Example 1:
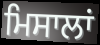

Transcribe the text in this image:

ਮਿਸਾਲਾਂ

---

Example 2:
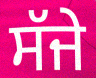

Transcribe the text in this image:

ਸੱਜੇ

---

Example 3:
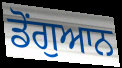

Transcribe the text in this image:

ਡੋਂਗੁਆਨ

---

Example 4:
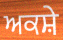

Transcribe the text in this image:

ਅਕਸ਼ੇ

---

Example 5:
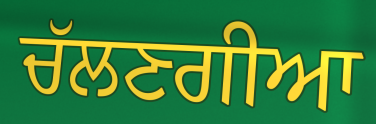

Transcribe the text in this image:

ਚੱਲਣਗੀਆ